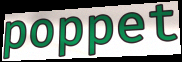
poppet